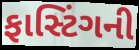
ફાસ્ટિંગની